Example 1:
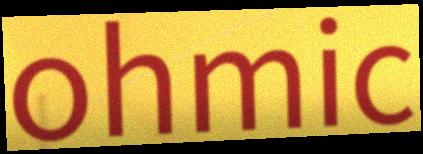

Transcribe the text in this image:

ohmic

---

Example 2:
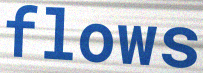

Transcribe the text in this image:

flows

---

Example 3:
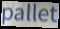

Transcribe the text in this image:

pallet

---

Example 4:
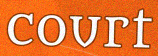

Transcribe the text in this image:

court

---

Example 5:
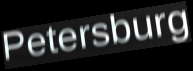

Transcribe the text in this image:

Petersburg